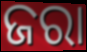
ଜରା